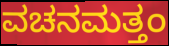
ವಚನಮತ್ತಂ